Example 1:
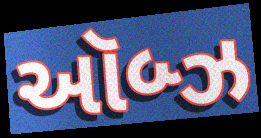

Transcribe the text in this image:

ઑબ્ઝ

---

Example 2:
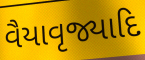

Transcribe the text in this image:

વૈયાવૃજ્યાદિ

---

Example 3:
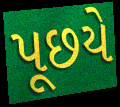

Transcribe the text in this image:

પૂછયે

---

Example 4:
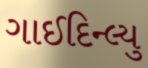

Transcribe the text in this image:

ગાઈદિન્લ્યુ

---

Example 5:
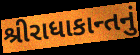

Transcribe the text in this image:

શ્રીરાધાકાન્તનું